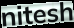
nitesh